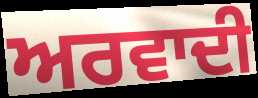
ਅਰਵਾਦੀ